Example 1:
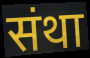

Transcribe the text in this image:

संथा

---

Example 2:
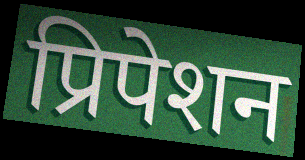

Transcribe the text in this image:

प्रिपेशन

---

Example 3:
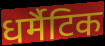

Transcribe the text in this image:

धर्मैटिक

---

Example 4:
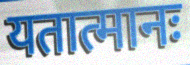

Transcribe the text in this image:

यतात्मानः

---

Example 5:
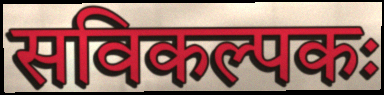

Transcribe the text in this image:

सविकल्पकः